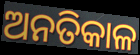
ଅନତିକାଳ